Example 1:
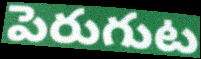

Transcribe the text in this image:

పెరుగుట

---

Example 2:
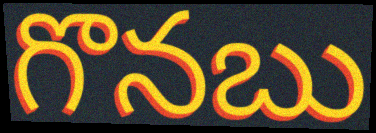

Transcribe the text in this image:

గొనబు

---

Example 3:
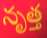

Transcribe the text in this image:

నృత్త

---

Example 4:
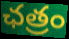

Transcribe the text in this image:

ఛత్రం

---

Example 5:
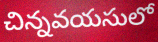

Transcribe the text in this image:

చిన్నవయసులో